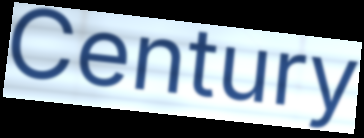
Century